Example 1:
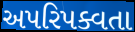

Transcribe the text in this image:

અપરિપક્વતા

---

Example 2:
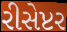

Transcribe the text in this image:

રીસેપ્ટર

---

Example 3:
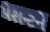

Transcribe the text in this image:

પેશન્ટને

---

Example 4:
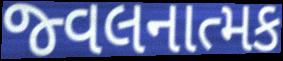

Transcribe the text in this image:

જ્વલનાત્મક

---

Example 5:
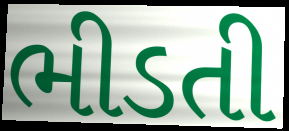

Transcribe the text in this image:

ભીડતી